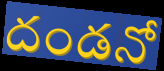
దండనో